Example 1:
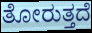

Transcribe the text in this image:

ತೋರುತ್ತದೆ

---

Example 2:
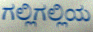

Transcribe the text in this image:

ಗಲ್ಲಿಗಲ್ಲಿಯ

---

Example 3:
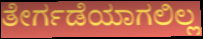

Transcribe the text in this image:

ತೇರ್ಗಡೆಯಾಗಲಿಲ್ಲ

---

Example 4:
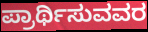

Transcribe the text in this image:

ಪ್ರಾರ್ಥಿಸುವವರ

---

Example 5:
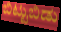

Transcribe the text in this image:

ಬಿಟ್ಟುಬಿಡು